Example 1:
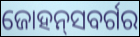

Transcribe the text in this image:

ଜୋହନ୍‌ସବର୍ଗର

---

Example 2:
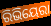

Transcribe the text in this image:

ରିଭିୟେରା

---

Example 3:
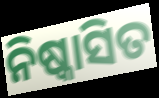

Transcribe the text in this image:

ନିଷ୍କାସିତ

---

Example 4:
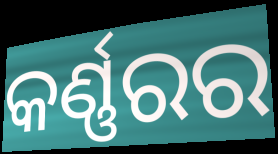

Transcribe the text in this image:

କର୍ଣ୍ଣରର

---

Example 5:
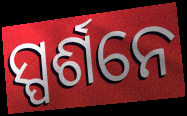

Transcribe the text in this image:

ସ୍ପର୍ଶନେ